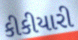
કીકીયારી